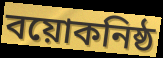
বয়োকনিষ্ঠ